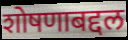
शोषणाबद्दल